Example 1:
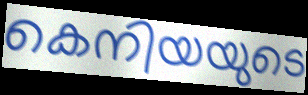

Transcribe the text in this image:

കെനിയയുടെ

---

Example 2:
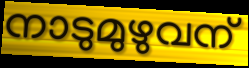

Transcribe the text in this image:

നാടുമുഴുവന്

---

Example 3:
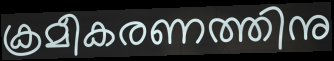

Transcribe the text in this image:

ക്രമീകരണത്തിനു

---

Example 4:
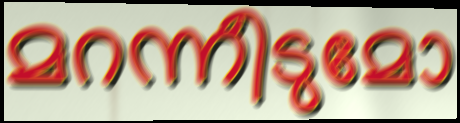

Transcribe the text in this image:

മറന്നീടുമോ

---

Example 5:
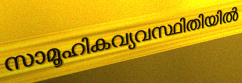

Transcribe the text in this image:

സാമൂഹികവ്യവസ്ഥിതിയിൽ